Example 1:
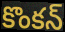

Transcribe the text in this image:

కొంకన్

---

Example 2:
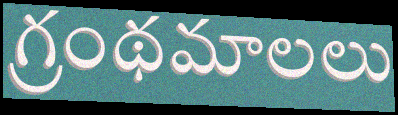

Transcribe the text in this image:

గ్రంథమాలలు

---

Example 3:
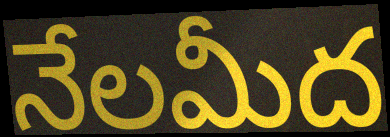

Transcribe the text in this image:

నేలమీద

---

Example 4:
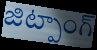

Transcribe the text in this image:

జిట్పాంగ్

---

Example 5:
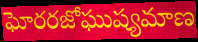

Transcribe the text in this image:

ఘోరరజోఘుష్యమాణ